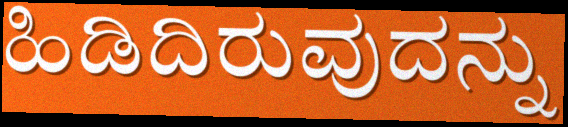
ಹಿಡಿದಿರುವುದನ್ನು